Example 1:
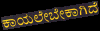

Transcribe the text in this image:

ಕಾಯಲೇಬೇಕಾಗಿದೆ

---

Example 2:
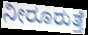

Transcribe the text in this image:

ನೀರೂರುತ್ತೆ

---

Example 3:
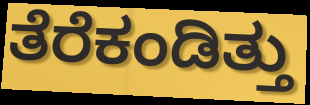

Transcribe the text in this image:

ತೆರೆಕಂಡಿತ್ತು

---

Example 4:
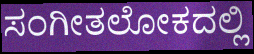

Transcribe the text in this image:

ಸಂಗೀತಲೋಕದಲ್ಲಿ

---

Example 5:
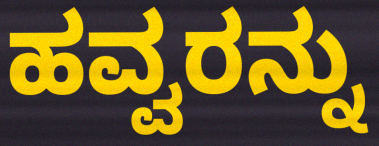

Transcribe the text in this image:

ಹವ್ವರನ್ನು